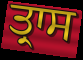
ਤ੍ਰਾਸ